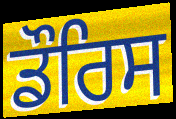
ਡੌਰਿਸ